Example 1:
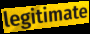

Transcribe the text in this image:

legitimate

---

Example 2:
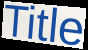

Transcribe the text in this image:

Title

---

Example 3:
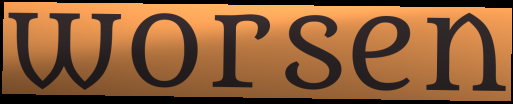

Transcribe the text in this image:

worsen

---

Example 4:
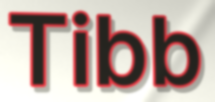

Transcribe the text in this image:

Tibb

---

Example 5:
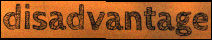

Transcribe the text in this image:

disadvantage